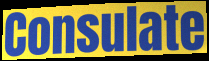
Consulate